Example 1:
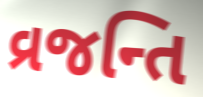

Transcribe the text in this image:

વ્રજન્તિ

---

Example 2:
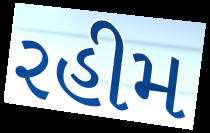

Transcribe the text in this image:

રહીમ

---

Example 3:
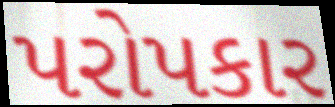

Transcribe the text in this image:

પરોપકાર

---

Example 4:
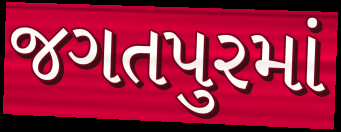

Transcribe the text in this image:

જગતપુરમાં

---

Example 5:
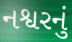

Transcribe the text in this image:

નશ્વરનું